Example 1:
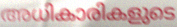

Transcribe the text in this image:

അധികാരികളുടെ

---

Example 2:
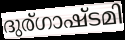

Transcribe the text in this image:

ദുര്ഗാഷ്ടമി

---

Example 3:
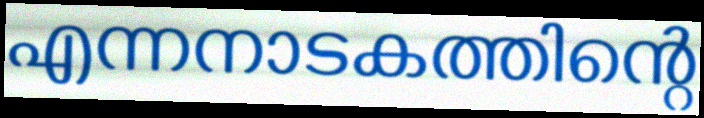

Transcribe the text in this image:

എന്നനാടകത്തിന്റെ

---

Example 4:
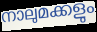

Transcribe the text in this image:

നാലുമക്കളും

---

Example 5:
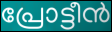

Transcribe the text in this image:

പ്രോട്ടീൻ